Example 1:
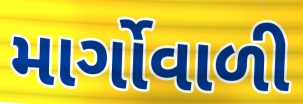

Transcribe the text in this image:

માર્ગોવાળી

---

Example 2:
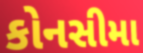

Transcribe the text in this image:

કોનસીમા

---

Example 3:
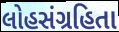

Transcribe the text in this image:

લોહસંગ્રહિતા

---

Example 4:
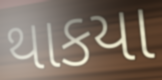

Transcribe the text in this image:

થાકયા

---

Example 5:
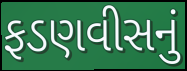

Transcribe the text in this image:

ફડણવીસનું